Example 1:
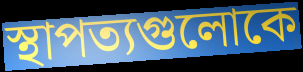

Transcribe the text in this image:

স্থাপত্যগুলোকে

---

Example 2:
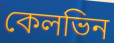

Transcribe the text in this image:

কেলভিন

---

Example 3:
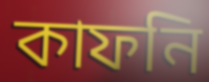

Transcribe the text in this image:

কাফনি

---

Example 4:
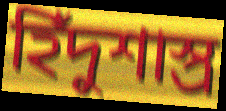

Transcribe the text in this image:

হিঁদুশাস্ত্র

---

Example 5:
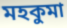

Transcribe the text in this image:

মহকুমা